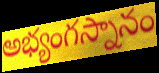
అభ్యంగస్నానం